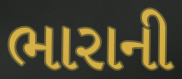
ભારાની